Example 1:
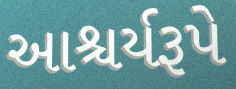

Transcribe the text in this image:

આશ્ચર્યરૂપે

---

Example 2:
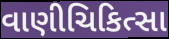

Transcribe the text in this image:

વાણીચિકિત્સા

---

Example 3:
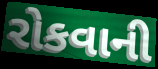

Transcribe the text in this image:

રોકવાની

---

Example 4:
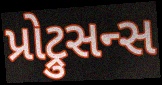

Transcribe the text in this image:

પ્રોટ્રુસન્સ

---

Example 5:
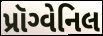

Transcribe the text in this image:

પ્રૉગ્વેનિલ